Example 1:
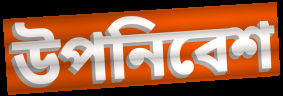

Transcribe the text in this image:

উপনিবেশ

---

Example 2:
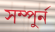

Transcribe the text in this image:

সম্পুৰ্ন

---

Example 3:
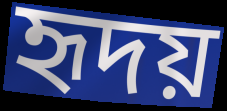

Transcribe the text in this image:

হৃদয়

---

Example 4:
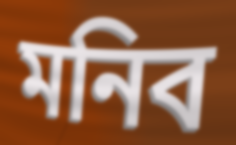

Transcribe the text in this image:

মনিব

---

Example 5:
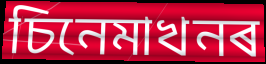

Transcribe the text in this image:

চিনেমাখনৰ